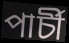
পাৰ্চী